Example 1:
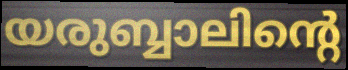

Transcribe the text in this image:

യരുബ്ബാലിന്റെ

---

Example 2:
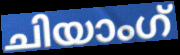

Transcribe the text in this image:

ചിയാംഗ്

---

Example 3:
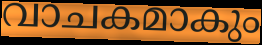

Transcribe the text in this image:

വാചകമാകും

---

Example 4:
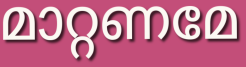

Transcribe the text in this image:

മാറ്റണമേ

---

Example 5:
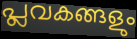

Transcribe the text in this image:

പ്ലവകങ്ങളും